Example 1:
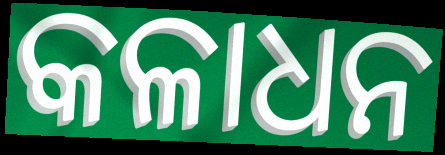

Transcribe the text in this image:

କଳାଧନ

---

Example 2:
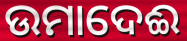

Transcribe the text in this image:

ଉମାଦେଈ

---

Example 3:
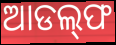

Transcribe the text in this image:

ଆଡଲ୍‌ଫ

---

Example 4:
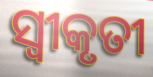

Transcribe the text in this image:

ସ୍ୱୀକୃତୀ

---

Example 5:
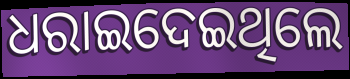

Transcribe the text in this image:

ଧରାଇଦେଇଥିଲେ